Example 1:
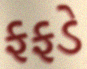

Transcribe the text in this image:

ફફડે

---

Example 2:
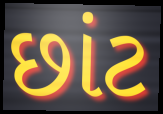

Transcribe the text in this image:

છાંટ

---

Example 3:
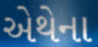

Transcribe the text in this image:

એથેના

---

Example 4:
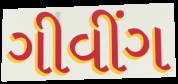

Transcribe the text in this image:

ગીવીંગ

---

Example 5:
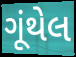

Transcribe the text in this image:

ગૂંથેલ